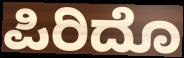
ಪಿರಿದೊ